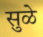
सुळे